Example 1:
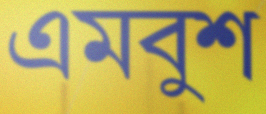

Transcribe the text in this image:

এমবুশ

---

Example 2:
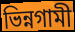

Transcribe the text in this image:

ভিন্নগামী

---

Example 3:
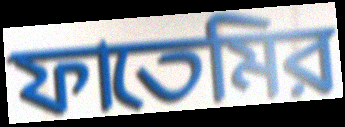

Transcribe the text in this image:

ফাতেমির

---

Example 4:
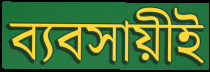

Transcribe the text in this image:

ব্যবসায়ীই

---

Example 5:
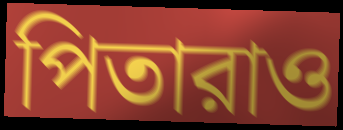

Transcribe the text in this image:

পিতারাও